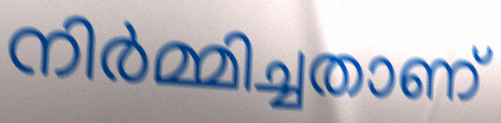
നിർമ്മിച്ചതാണ്